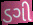
ડગી